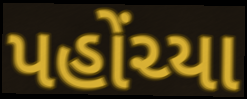
પહોંચ્યા